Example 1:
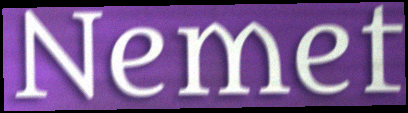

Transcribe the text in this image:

Nemet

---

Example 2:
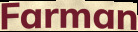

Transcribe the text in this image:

Farman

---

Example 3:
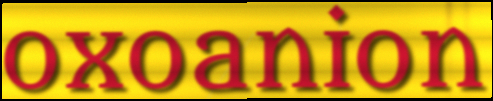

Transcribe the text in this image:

oxoanion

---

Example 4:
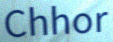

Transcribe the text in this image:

Chhor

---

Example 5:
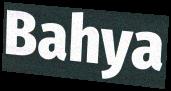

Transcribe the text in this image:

Bahya